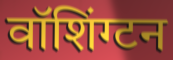
वॉशिंग्टन